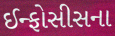
ઈન્ફોસીસના